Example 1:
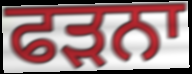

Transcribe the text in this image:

ਫੜਨਾ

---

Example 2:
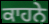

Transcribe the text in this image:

ਕਾਹਨੇ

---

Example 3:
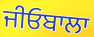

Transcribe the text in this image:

ਜੀਓਬਾਲਾ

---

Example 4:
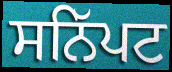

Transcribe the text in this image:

ਸਨਿੱਪਟ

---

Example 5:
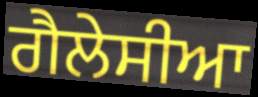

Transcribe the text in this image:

ਗੈਲੇਸੀਆ